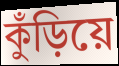
কুঁড়িয়ে